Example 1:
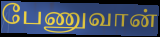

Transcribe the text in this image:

பேணுவான்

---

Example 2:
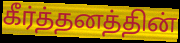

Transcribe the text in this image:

கீர்த்தனத்தின்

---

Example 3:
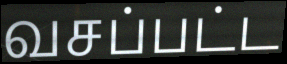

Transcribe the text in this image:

வசப்பட்ட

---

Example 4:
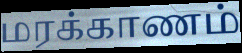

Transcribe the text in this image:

மரக்காணம்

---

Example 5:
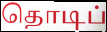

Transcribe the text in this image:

தொடிப்